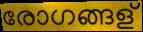
രോഗങ്ങള്